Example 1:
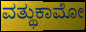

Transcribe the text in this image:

ವತ್ಥುಕಾಮೋ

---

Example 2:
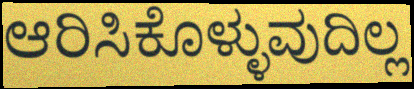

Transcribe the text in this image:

ಆರಿಸಿಕೊಳ್ಳುವುದಿಲ್ಲ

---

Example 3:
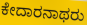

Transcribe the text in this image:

ಕೇದಾರನಾಥರು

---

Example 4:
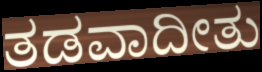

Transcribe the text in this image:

ತಡವಾದೀತು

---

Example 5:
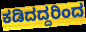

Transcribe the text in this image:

ಕಡಿದದ್ದರಿಂದ